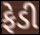
ફેડી